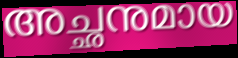
അച്ഛനുമായ